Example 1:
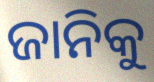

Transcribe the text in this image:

ଜାନିକୁ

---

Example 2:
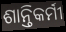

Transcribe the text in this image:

ଶାନ୍ତିକର୍ମୀ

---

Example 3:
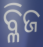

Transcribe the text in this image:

ବ୍ଳିଜ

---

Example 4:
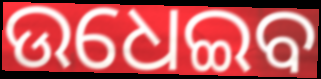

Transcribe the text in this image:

ଉଧେଇବ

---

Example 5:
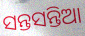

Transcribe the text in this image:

ସନ୍ତସନ୍ତିଆ